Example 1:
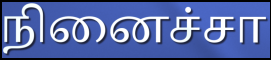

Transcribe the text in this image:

நினைச்சா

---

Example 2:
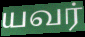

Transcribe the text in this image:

யவர்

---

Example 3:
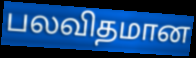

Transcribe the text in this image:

பலவிதமான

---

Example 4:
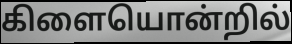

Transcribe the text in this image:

கிளையொன்றில்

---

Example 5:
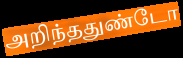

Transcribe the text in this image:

அறிந்ததுண்டோ